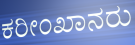
ಕರೀಂಖಾನರು